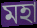
মহা